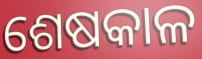
ଶେଷକାଳ